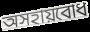
অসহায়বোধ